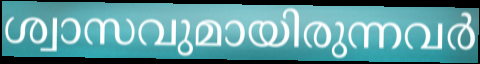
ശ്വാസവുമായിരുന്നവർ